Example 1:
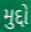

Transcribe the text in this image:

મુદ્દો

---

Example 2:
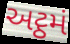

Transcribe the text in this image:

અટ્ઠમં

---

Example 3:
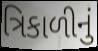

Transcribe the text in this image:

ત્રિકાળીનું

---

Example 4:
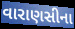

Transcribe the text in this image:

વારાણસીના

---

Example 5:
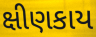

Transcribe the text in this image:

ક્ષીણકાય